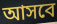
আসবে